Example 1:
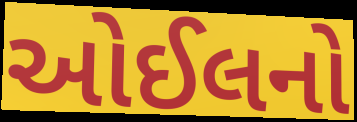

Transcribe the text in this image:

ઓઈલનો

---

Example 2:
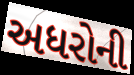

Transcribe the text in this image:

અધરોની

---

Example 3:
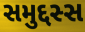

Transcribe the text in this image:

સમુદ્દસ્સ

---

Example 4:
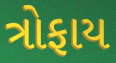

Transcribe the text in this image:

ત્રોફાય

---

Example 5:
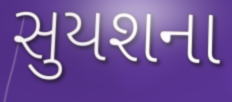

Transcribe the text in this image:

સુયશના